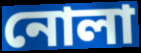
নোলা